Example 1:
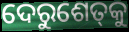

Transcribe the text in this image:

ଦେରୁଶେତ୍‌କୁ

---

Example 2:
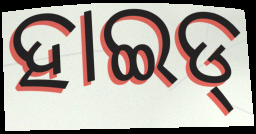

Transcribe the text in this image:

ହାଇଡ୍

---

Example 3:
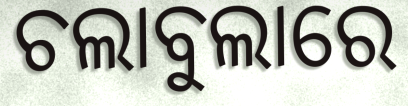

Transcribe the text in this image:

ଚଲାବୁଲାରେ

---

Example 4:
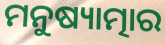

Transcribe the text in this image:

ମନୁଷ୍ୟାତ୍ମାର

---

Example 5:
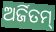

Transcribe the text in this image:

ଅର୍ଜିତମ୍